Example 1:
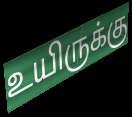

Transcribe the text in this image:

உயிருக்கு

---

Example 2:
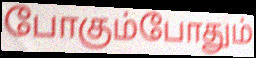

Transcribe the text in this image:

போகும்போதும்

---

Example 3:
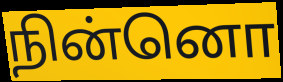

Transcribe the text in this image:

நின்னொ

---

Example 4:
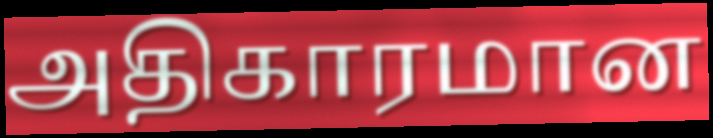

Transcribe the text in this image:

அதிகாரமான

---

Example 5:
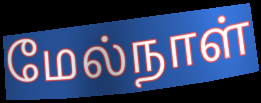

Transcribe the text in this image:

மேல்நாள்